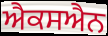
ਐਕਸਐਨ